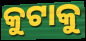
କୁଟାକୁ